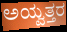
ಅಯ್ವತ್ತರ